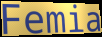
Femia